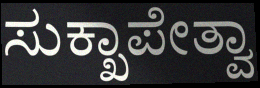
ಸುಕ್ಖಾಪೇತ್ವಾ